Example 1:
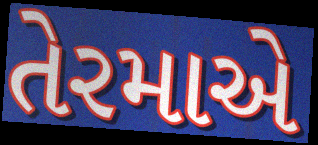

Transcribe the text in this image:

તેરમાએ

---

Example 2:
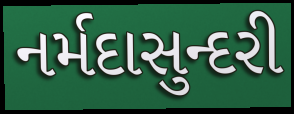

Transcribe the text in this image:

નર્મદાસુન્દરી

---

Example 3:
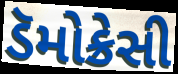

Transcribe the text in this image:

ડૅમોક્રેસી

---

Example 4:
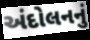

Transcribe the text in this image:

અંદોલનનું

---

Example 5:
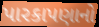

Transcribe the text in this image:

પારકાપણાનો